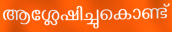
ആശ്ലേഷിച്ചുകൊണ്ട്